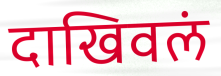
दाखिवलं